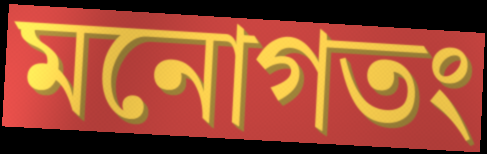
মনোগতং